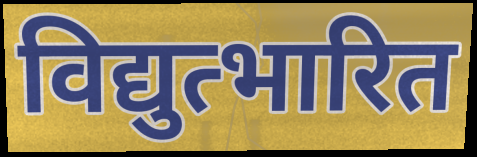
विद्युत्भारित